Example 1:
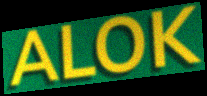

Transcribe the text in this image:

ALOK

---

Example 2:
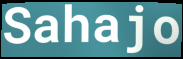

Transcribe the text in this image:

Sahajo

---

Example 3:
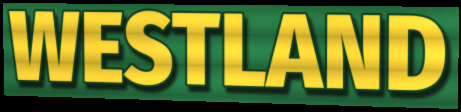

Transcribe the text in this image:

WESTLAND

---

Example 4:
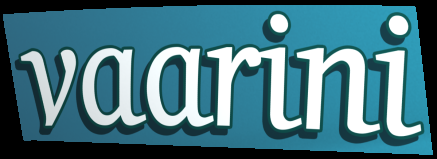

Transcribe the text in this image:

vaarini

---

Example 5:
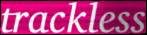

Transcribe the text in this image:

trackless